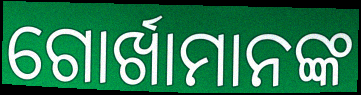
ଗୋର୍ଖାମାନଙ୍କ